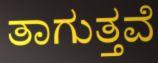
ತಾಗುತ್ತವೆ